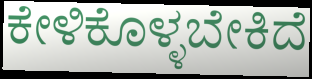
ಕೇಳಿಕೊಳ್ಳಬೇಕಿದೆ